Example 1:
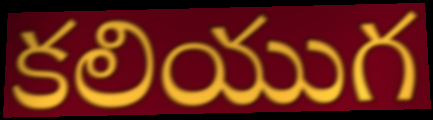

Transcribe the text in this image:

కలియుగ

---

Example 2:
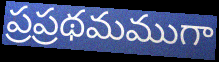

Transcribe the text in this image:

ప్రప్రథమముగా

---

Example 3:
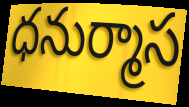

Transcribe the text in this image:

ధనుర్మాస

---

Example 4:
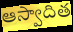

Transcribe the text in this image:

ఆస్వాదిత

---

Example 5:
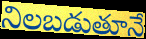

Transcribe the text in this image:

నిలబడుతూనే